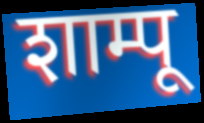
शाम्पू